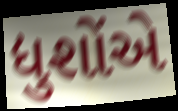
દ્યુશોંએ